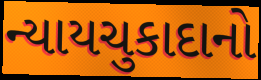
ન્યાયચુકાદાનો